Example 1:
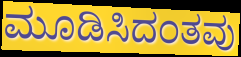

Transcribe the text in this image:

ಮೂಡಿಸಿದಂತವು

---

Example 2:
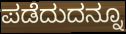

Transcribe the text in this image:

ಪಡೆದುದನ್ನೂ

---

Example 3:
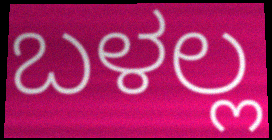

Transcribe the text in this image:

ಬಳಲ್ಲ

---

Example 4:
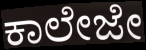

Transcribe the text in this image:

ಕಾಲೇಜೇ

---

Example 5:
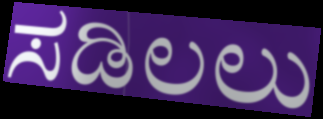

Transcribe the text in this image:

ಸಡಿಲಲು